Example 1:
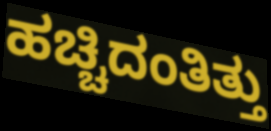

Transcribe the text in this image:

ಹಚ್ಚಿದಂತಿತ್ತು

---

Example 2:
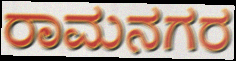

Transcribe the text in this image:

ರಾಮನಗರ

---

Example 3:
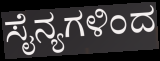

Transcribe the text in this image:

ಸೈನ್ಯಗಳಿಂದ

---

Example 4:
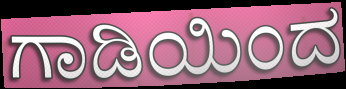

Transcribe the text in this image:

ಗಾಡಿಯಿಂದ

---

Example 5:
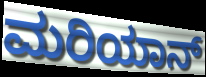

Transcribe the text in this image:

ಮರಿಯಾನ್